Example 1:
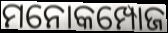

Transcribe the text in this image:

ମନୋକମ୍ପୋଜ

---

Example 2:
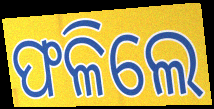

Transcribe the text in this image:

ଫଳିଲେ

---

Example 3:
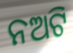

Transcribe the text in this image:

ନଅଟି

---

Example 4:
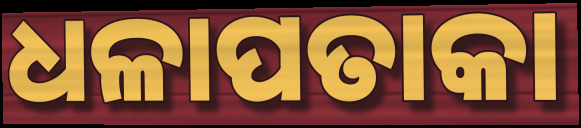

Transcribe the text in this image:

ଧଳାପତାକା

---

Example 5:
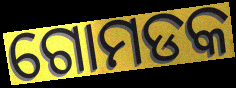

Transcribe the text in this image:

ଗୋମଡକ